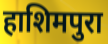
हाशिमपुरा